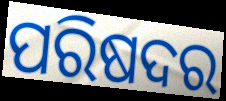
ପରିଷଦର